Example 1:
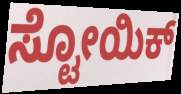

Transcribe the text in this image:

ಸ್ಟೋಯಿಕ್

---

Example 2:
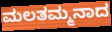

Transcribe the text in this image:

ಮಲತಮ್ಮನಾದ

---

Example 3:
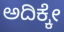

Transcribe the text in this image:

ಅದಿಕ್ಕೇ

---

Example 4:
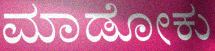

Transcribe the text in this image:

ಮಾಡೋಕು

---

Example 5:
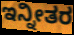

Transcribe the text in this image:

ಇನ್ನೀತರ